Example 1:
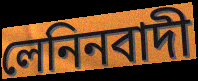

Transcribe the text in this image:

লেনিনবাদী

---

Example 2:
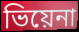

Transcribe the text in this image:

ভিয়েনা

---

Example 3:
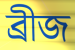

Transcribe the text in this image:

ব্ৰীজ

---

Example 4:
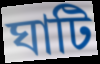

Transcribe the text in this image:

ঘাটি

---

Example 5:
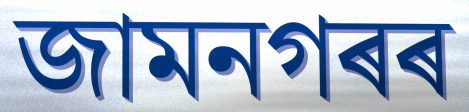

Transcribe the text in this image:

জামনগৰৰ